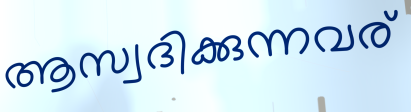
ആസ്വദിക്കുന്നവര്